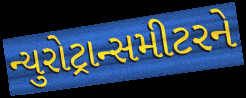
ન્યુરોટ્રાન્સમીટરને